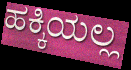
ಹಕ್ಕಿಯಲ್ಲ